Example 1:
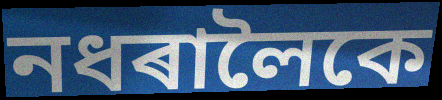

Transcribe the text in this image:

নধৰালৈকে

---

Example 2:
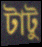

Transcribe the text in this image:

টাটু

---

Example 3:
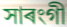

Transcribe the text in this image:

সাৰংগী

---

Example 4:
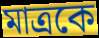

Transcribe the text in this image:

মাত্ৰকে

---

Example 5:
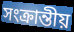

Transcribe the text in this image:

সংক্ৰান্তীয়